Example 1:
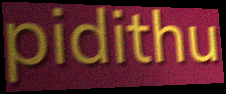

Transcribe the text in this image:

pidithu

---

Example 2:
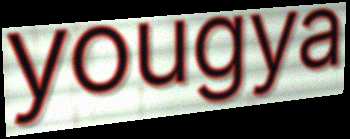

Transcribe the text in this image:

yougya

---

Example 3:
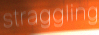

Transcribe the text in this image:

straggling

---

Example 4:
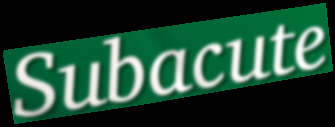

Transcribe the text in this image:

Subacute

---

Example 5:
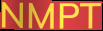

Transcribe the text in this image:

NMPT